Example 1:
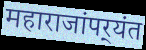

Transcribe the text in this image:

महाराजांपर्यंत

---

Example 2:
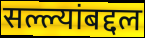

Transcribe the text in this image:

सल्ल्यांबद्दल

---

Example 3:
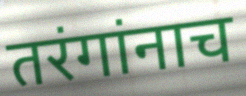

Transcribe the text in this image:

तरंगांनाच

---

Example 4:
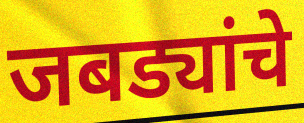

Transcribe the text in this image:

जबड्यांचे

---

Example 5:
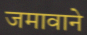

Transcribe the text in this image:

जमावाने